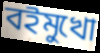
বইমুখো